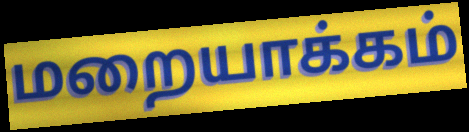
மறையாக்கம்